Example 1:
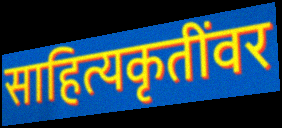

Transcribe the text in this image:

साहित्यकृतींवर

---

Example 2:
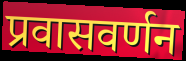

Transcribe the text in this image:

प्रवासवर्णन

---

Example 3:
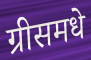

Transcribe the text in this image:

ग्रीसमधे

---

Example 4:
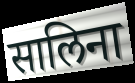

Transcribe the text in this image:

सालिना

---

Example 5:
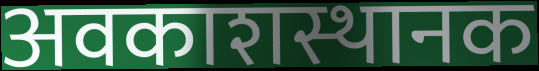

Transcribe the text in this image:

अवकाशस्थानक